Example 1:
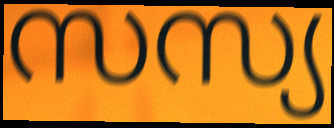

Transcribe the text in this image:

സസ്യ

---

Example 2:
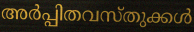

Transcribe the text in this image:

അർപ്പിതവസ്തുക്കൾ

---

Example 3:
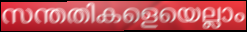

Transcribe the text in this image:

സന്തതികളെയെല്ലാം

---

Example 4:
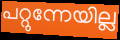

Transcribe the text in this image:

പറ്റുന്നേയില്ല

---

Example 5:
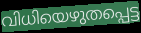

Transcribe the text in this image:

വിധിയെഴുതപ്പെട്ട